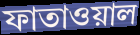
ফাতাওয়াল